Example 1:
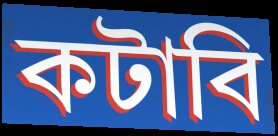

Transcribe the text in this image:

কটাবি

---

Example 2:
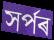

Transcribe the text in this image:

সৰ্পৰ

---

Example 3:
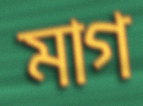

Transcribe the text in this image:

মাগ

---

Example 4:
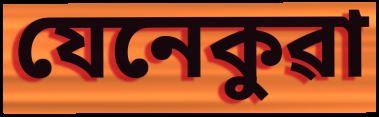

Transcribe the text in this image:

যেনেকুৱা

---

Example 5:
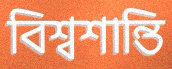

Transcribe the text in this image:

বিশ্বশান্তি